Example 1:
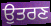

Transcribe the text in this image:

ਉਤਰਣ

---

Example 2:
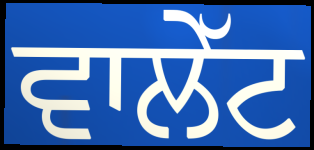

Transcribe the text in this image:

ਵਾਲੇੱਟ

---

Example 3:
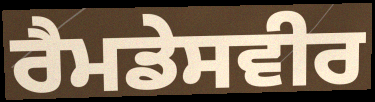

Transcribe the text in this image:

ਰੈਮਡੇਸਵੀਰ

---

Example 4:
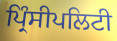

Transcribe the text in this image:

ਪ੍ਰਿੰਸੀਪਲਿਟੀ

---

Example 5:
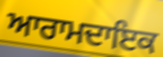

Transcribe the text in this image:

ਆਰਾਮਦਾਇਕ